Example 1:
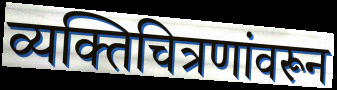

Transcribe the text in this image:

व्यक्तिचित्रणांवरून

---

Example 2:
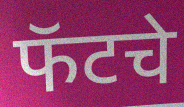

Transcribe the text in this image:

फॅटचे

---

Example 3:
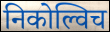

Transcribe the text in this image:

निकोल्विच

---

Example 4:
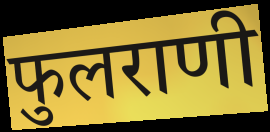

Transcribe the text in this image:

फुलराणी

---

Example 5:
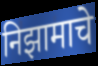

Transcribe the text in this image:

निझामाचे